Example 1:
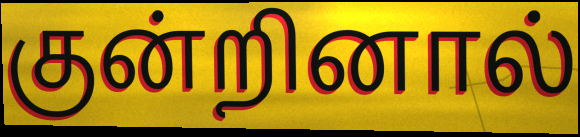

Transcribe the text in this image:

குன்றினால்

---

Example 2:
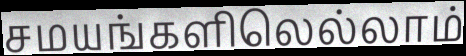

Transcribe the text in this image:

சமயங்களிலெல்லாம்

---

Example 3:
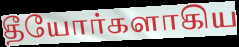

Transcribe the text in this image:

தீயோர்களாகிய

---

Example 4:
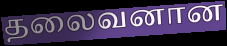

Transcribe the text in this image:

தலைவனான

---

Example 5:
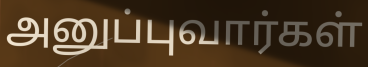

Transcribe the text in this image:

அனுப்புவார்கள்